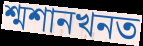
শ্মশানখনত